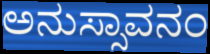
ಅನುಸ್ಸಾವನಂ